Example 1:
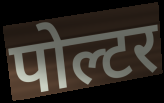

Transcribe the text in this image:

पोल्टर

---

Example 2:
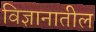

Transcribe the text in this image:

विज्ञानातील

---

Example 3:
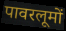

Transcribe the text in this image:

पावरलूमों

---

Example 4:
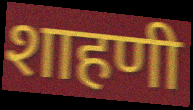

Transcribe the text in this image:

शाहणी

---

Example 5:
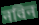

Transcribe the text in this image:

नविन